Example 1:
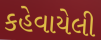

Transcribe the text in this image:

કહેવાયેલી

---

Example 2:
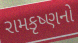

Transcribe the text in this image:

રામકૃષ્ણનો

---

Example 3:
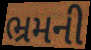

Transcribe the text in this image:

ભ્રમની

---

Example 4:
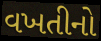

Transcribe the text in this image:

વખતીનો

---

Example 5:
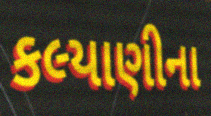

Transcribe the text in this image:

કલ્યાણીના